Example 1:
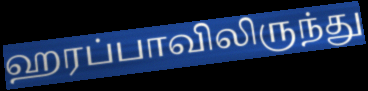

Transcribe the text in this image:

ஹரப்பாவிலிருந்து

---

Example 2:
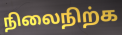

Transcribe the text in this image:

நிலைநிற்க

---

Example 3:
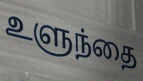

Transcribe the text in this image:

உளுந்தை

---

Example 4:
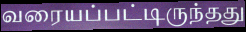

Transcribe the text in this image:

வரையப்பட்டிருந்தது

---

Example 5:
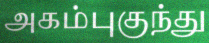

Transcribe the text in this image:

அகம்புகுந்து